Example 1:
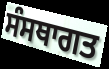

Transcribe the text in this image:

ਸੰਸਥਾਗਤ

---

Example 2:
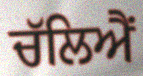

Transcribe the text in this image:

ਚੱਲਿਐਂ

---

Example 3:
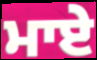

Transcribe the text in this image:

ਮਾਏ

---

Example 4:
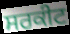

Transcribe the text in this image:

ਸਰਕੀਟ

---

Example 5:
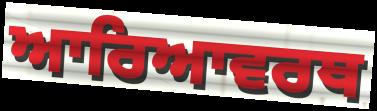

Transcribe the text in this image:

ਆਰਿਆਵਰਥ